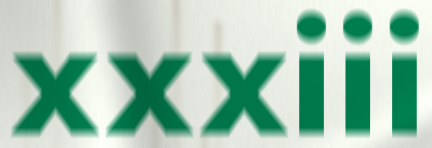
xxxiii